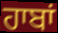
ਹਾਬਾਂ